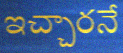
ఇచ్చారనే